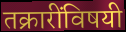
तक्रारींविषयी